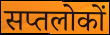
सप्तलोकों